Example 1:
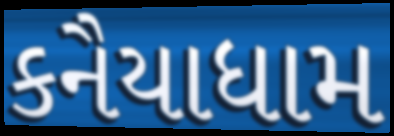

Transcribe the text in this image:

કનૈયાધામ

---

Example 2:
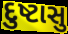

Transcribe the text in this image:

દુષ્ટાસુ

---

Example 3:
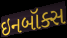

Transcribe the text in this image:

ઇનબૉક્સ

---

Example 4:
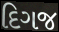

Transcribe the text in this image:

દિગજ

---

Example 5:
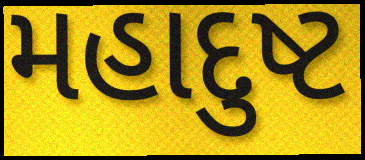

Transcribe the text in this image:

મહાદુષ્ટ